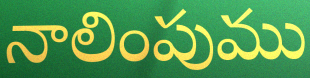
నాలింపుము